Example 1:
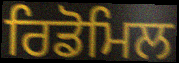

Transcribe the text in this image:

ਰਿਡੋਮਿਲ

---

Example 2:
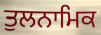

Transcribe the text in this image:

ਤੁਲਨਾਮਿਕ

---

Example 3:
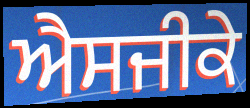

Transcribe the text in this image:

ਐਸਜੀਕੇ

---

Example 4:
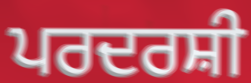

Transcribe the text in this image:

ਪਰਦਰਸ਼ੀ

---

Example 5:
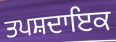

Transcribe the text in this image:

ਤਪਸ਼ਦਾਇਕ